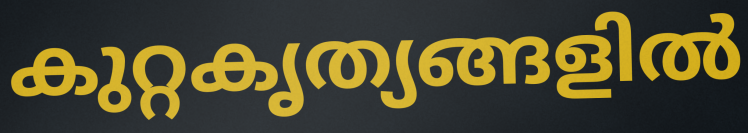
കുറ്റകൃത്യങ്ങളിൽ